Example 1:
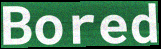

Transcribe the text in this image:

Bored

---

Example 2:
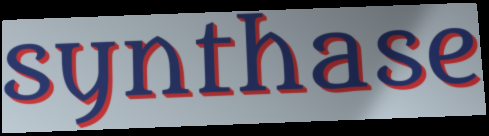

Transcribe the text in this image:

synthase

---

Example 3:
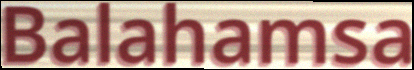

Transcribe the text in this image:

Balahamsa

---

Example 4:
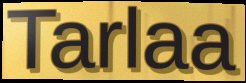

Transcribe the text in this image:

Tarlaa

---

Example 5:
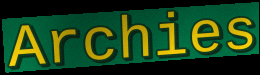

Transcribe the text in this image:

Archies